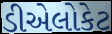
ડીએલોકેટ